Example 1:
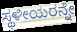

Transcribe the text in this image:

ಸ್ಥಳೀಯರನ್ನೇ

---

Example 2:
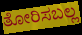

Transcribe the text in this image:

ತೋರಿಸಬಲ್ಲ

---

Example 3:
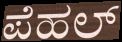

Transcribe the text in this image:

ಪೆಹಲ್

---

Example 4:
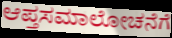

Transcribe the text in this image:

ಆಪ್ತಸಮಾಲೋಚನೆಗೆ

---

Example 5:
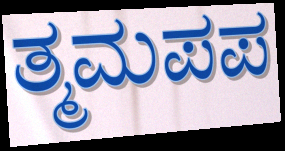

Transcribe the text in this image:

ತ್ಮಮಪಪ